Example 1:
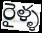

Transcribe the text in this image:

రైళ్ళ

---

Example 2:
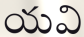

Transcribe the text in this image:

యవి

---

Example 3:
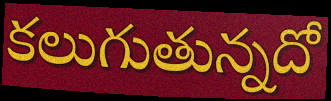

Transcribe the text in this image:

కలుగుతున్నదో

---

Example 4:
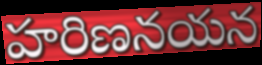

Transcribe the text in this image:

హరిణనయన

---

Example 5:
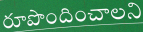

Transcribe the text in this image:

రూపొందించాలని